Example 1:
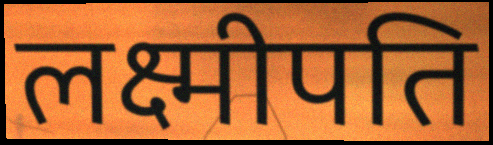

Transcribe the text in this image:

लक्ष्मीपति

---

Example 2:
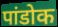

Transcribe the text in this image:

पांडोक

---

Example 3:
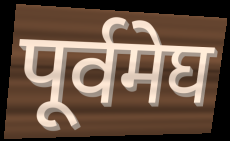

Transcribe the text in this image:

पूर्वमेघ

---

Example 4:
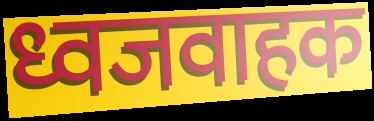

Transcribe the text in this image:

ध्वजवाहक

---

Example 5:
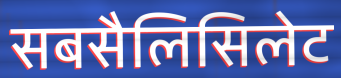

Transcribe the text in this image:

सबसैलिसिलेट